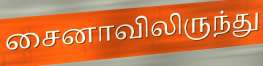
சைனாவிலிருந்து